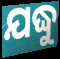
ଯଦ୍ଧୁ